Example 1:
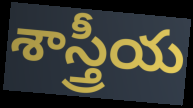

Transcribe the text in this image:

శాస్త్రీయ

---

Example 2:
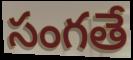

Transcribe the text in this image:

సంగతే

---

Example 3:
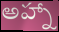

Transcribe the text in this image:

అహ్నా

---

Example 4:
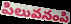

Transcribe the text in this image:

పిలువనంపి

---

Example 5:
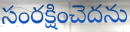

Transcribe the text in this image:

సంరక్షించెదను